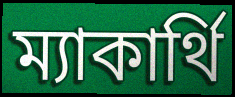
ম্যাকার্থি